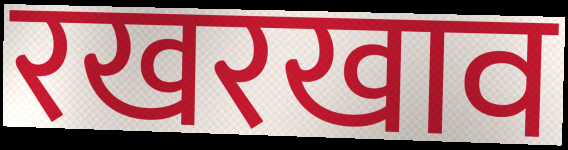
रखरखाव